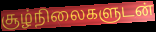
சூழ்நிலைகளுடன்